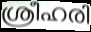
ശ്രീഹരി